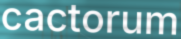
cactorum